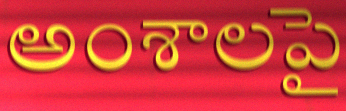
అంశాలపై